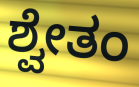
ಶ್ವೇತಂ